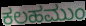
ಕಲಹಮುಂ